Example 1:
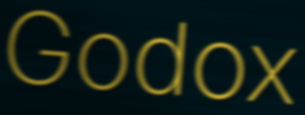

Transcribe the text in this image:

Godox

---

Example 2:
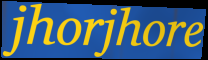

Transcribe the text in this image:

jhorjhore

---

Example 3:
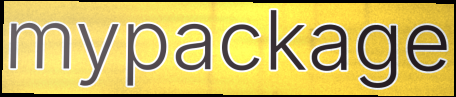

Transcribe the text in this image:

mypackage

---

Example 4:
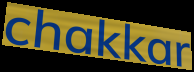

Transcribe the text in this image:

chakkar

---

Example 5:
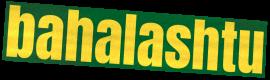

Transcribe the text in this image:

bahalashtu